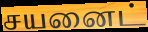
சயனைட்